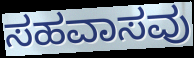
ಸಹವಾಸವು